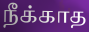
நீக்காத